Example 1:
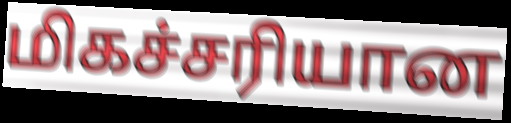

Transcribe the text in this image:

மிகச்சரியான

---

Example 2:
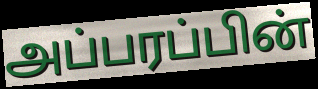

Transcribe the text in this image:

அப்பரப்பின்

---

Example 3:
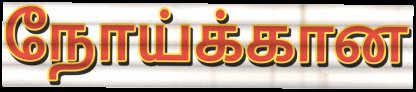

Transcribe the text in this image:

நோய்க்கான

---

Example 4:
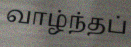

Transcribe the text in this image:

வாழ்ந்தப்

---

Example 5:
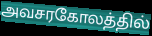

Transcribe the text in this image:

அவசரகோலத்தில்